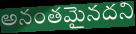
అనంతమైనదని